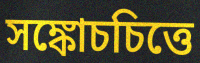
সঙ্কোচচিত্তে